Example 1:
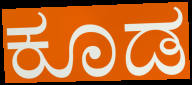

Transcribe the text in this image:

ಕೂಡ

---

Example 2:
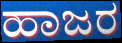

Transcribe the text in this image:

ಹಾಜರ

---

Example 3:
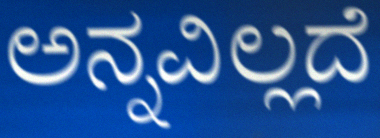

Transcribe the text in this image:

ಅನ್ನವಿಲ್ಲದೆ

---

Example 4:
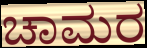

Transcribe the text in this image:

ಚಾಮರ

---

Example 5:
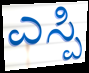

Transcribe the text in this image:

ಎಸ್ಪಿ